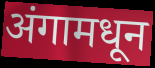
अंगामधून